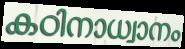
കഠിനാധ്വാനം